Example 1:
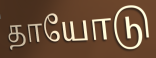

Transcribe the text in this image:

தாயோடு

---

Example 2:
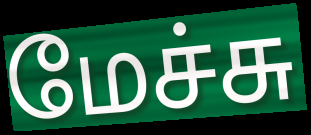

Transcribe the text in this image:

மேச்சு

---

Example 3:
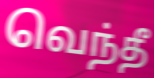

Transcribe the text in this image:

வெந்தீ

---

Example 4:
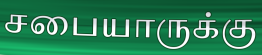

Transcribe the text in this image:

சபையாருக்கு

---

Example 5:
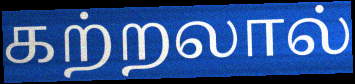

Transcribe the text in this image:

கற்றலால்